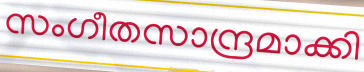
സംഗീതസാന്ദ്രമാക്കി